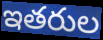
ఇతరుల